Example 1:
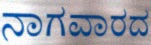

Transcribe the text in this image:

ನಾಗವಾರದ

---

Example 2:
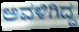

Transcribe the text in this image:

ಅವಳಿಗಿದ್ದ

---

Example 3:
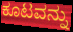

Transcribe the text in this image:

ಕೂಟವನ್ನು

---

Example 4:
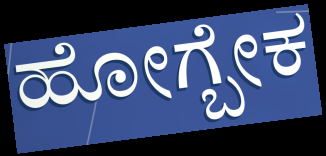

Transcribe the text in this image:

ಹೋಗ್ಬೇಕ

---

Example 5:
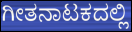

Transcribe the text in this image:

ಗೀತನಾಟಕದಲ್ಲಿ